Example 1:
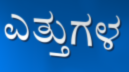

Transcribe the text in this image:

ಎತ್ತುಗಳ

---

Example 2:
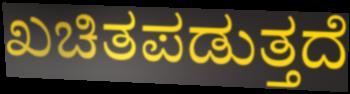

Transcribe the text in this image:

ಖಚಿತಪಡುತ್ತದೆ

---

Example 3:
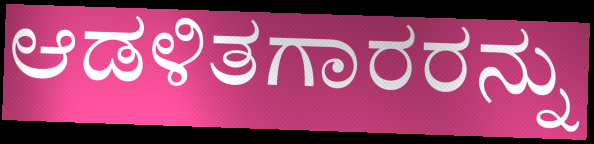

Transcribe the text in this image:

ಆಡಳಿತಗಾರರನ್ನು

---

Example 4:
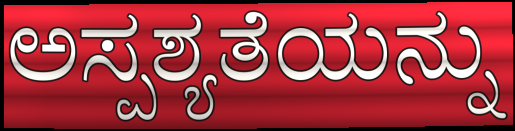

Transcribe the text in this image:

ಅಸ್ಪಶ್ಯತೆಯನ್ನು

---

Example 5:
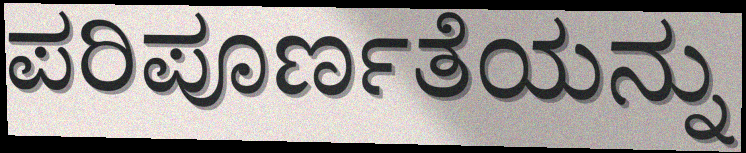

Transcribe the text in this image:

ಪರಿಪೂರ್ಣತೆಯನ್ನು